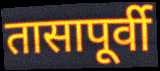
तासापूर्वी